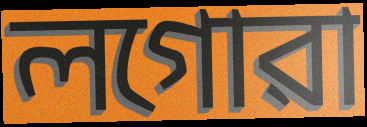
লগোৱা